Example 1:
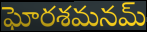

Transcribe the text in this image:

ఘోరశమనమ్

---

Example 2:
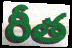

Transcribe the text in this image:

రీత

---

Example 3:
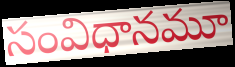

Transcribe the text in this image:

సంవిధానమూ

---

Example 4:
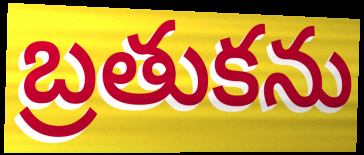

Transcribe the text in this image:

బ్రతుకను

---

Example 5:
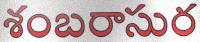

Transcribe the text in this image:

శంబరాసుర